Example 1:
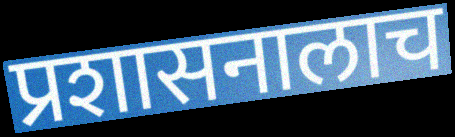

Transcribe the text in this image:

प्रशासनालाच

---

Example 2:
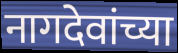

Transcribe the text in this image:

नागदेवांच्या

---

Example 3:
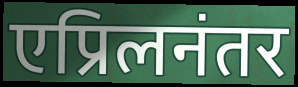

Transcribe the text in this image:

एप्रिलनंतर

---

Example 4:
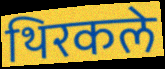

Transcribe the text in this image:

थिरकले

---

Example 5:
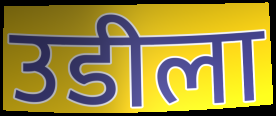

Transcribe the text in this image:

उडीला